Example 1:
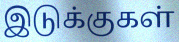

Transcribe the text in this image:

இடுக்குகள்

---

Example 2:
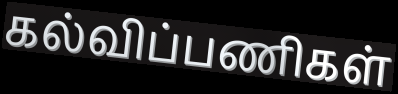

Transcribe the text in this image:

கல்விப்பணிகள்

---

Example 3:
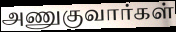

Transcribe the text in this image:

அணுகுவார்கள்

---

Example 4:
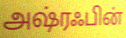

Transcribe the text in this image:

அஷ்ரஃபின்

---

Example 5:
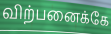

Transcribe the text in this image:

விற்பனைக்கே